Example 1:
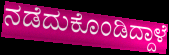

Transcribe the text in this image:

ನಡೆದುಕೊಂಡಿದ್ದಾಳೆ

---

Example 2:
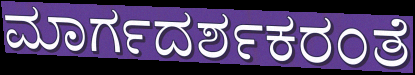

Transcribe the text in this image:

ಮಾರ್ಗದರ್ಶಕರಂತೆ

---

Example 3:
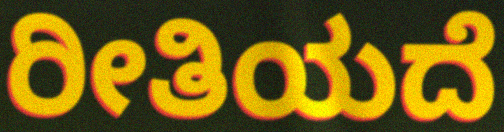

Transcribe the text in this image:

ರೀತಿಯದೆ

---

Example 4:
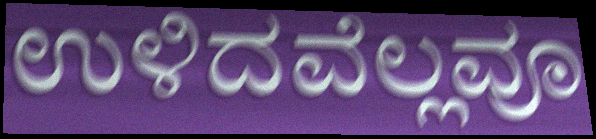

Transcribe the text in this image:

ಉಳಿದವೆಲ್ಲವೂ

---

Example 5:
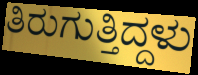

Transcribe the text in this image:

ತಿರುಗುತ್ತಿದ್ದಳು